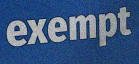
exempt